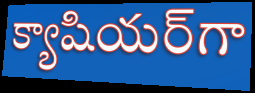
క్యాషియర్‌గా